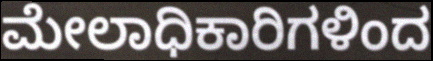
ಮೇಲಾಧಿಕಾರಿಗಳಿಂದ